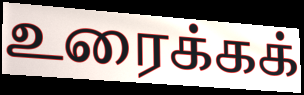
உரைக்கக்